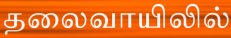
தலைவாயிலில்